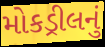
મોકડ્રીલનું